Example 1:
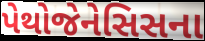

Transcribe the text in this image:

પેથોજેનેસિસના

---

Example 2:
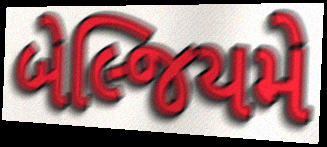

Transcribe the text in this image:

બેલ્જિયમે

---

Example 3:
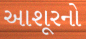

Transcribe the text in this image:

આશૂરનો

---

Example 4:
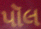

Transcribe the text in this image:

પૉલ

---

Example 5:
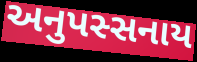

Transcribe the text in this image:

અનુપસ્સનાય